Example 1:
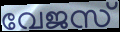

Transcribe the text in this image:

വേജസ്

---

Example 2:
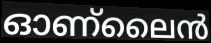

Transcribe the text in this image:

ഓണ്ലൈൻ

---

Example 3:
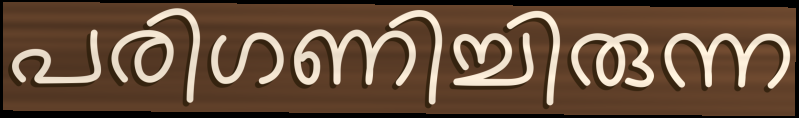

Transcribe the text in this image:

പരിഗണിച്ചിരുന്ന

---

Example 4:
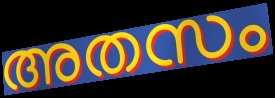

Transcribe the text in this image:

അതസം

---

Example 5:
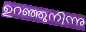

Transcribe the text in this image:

ഉറഞ്ഞുനിന്നു